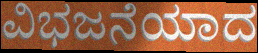
ವಿಭಜನೆಯಾದ